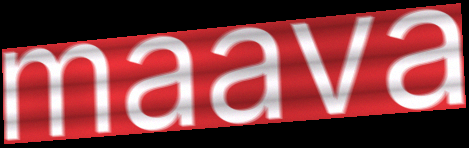
maava